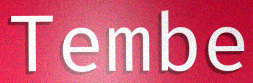
Tembe